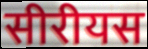
सीरीयस